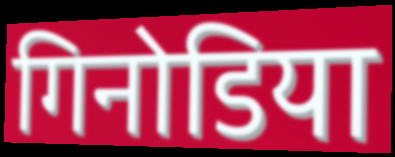
गिनोडिया